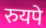
रुयपे